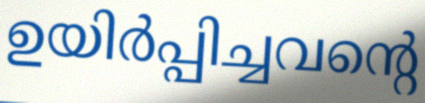
ഉയിർപ്പിച്ചവന്റെ